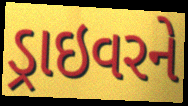
ડ્રાઇવરને